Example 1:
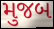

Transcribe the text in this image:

મુજબ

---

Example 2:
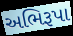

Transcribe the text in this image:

અભિરૂપા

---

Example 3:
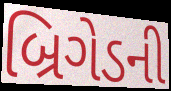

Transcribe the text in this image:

બ્રિગેડની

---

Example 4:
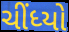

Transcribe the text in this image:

ચીંધ્યો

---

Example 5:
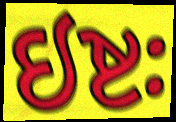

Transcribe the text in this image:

ઇષ્ટઃ